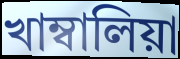
খাম্বালিয়া